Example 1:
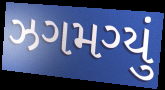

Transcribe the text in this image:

ઝગમગ્યું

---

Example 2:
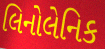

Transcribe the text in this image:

લિનોલેનિક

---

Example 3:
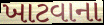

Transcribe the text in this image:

ખાટવાના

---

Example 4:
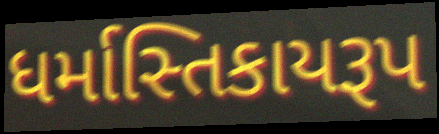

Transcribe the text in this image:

ધર્માસ્તિકાયરૂપ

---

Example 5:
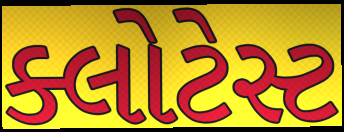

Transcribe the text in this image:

ક્લોટેસ્ટ